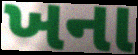
ખના